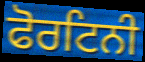
ਫੋਰਟਿਨੀ